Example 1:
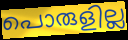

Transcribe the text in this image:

പൊരുളില്ല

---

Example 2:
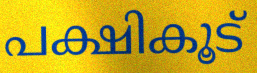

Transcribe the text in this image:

പക്ഷികൂട്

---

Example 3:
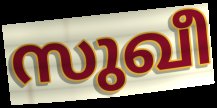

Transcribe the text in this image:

സുഖീ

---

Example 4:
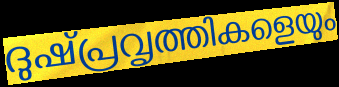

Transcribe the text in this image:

ദുഷ്പ്രവൃത്തികളെയും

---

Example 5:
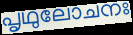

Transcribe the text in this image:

പൃഥുലോചനഃ